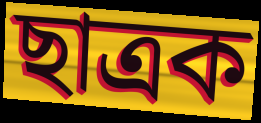
ছাত্ৰক